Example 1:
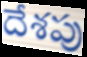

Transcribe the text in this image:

దేశపు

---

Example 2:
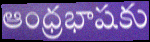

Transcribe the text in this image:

ఆంధ్రభాషకు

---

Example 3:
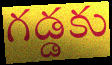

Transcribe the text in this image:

గడ్డకు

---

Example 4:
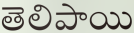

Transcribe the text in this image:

తెలిపాయి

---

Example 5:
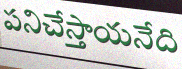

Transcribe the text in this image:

పనిచేస్తాయనేది